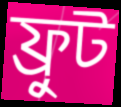
ফ্রুট